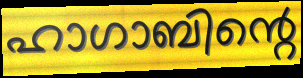
ഹാഗാബിന്റെ